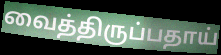
வைத்திருப்பதாய்